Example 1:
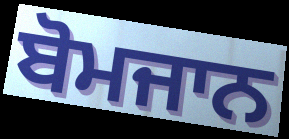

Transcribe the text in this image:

ਬੋਮਜਾਨ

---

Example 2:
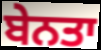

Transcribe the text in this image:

ਬੇਨਤਾ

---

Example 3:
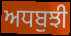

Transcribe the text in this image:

ਅਧਬੁਝੀ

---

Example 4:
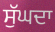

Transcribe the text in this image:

ਸੁੱਘਦਾ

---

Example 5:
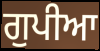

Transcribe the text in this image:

ਗੁਪੀਆ